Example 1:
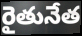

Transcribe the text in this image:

రైతునేత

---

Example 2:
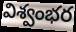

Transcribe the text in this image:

విశ్వంభర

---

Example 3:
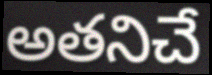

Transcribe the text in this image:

అతనిచే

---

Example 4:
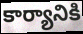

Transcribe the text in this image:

కార్యానికి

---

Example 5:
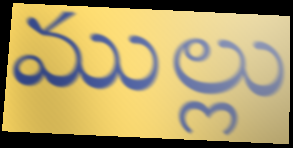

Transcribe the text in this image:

ముల్లు